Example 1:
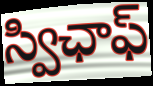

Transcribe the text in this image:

స్విఛాఫ్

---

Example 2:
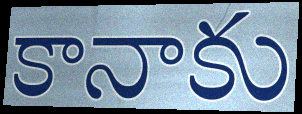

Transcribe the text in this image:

కానాకు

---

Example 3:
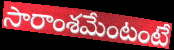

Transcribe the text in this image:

సారాంశమేంటంటే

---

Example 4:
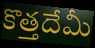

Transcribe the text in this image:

కొత్తదేమీ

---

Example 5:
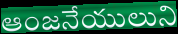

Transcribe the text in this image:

ఆంజనేయులుని